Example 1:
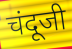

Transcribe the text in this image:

चंदूजी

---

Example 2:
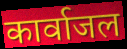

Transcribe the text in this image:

कार्वाजल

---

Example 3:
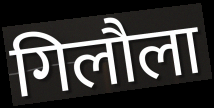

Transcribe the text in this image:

गिलौला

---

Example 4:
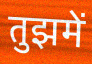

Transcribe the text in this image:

तुझमें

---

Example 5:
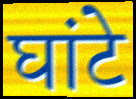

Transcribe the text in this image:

घांटे